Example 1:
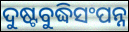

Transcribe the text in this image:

ଦୁଷ୍ଟବୁଦ୍ଧିସଂପନ୍ନ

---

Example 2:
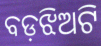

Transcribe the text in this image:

ବଡ଼ଝିଅଟି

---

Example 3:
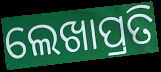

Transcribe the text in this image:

ଲେଖାପ୍ରତି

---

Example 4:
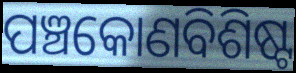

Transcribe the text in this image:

ପଞ୍ଚକୋଣବିଶିଷ୍ଟ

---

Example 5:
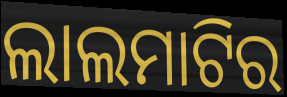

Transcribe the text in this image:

ଲାଲମାଟିର